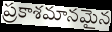
ప్రకాశమానమైన